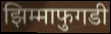
झिम्माफुगडी